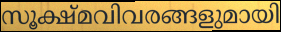
സൂക്ഷ്മവിവരങ്ങളുമായി